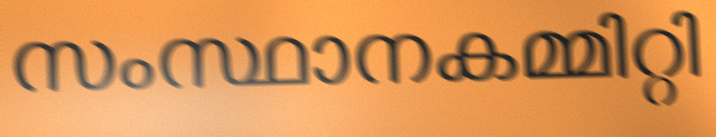
സംസ്ഥാനകമ്മിറ്റി